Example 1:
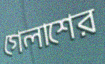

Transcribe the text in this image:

গেলাশের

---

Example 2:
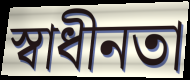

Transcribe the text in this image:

স্বাধীনতা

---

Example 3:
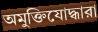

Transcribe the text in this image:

অমুক্তিযোদ্ধারা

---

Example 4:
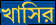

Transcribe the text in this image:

খাসির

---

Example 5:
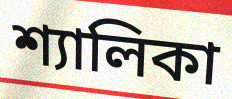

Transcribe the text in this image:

শ্যালিকা